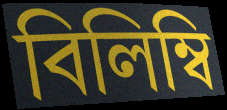
বিলিম্বি